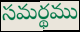
సమర్థము